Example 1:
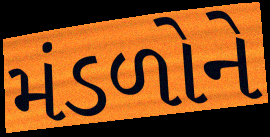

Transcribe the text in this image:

મંડળોને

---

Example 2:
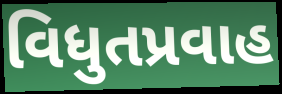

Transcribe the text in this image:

વિધુતપ્રવાહ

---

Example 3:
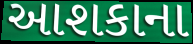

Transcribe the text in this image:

આશકાના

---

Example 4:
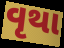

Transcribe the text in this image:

વૃથા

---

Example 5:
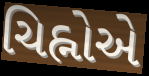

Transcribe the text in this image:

ચિહ્નોએ